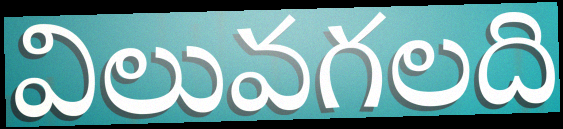
విలువగలది